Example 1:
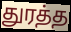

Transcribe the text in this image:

துரத்த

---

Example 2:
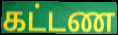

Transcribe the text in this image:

கட்டண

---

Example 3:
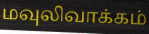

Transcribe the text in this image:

மவுலிவாக்கம்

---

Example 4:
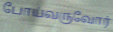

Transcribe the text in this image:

போய்வருவோர்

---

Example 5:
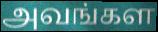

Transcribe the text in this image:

அவங்கள